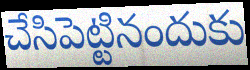
చేసిపెట్టినందుకు